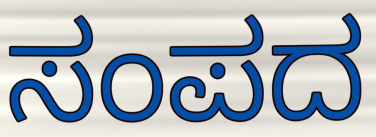
ಸಂಪದ